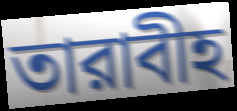
তারাবীহ